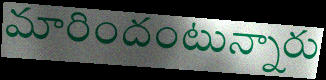
మారిందంటున్నారు